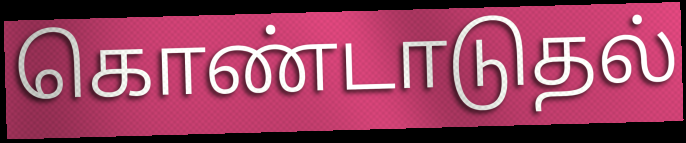
கொண்டாடுதல்